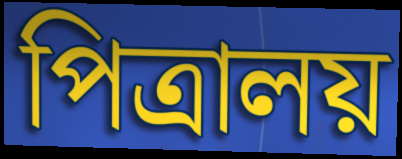
পিত্রালয়